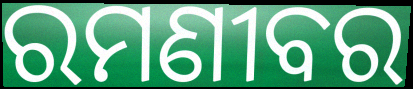
ରମଣୀବର